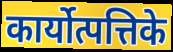
कार्योत्पत्तिके